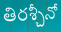
తిరశ్చీనో